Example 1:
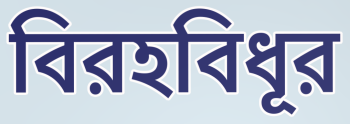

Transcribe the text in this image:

বিরহবিধূর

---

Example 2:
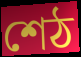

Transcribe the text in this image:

শেঠ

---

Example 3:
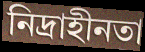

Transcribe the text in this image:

নিদ্রাহীনতা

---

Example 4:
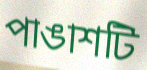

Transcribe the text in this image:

পাঙাশটি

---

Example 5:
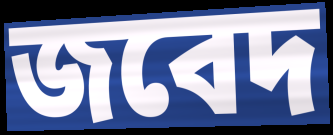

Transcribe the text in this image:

জবেদ